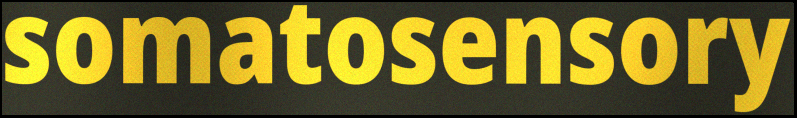
somatosensory